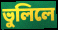
ভুলিলে